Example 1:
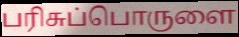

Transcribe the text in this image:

பரிசுப்பொருளை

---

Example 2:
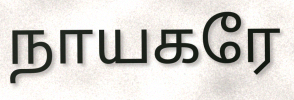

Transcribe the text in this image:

நாயகரே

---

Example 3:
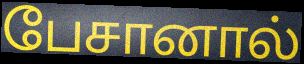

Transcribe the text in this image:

பேசானால்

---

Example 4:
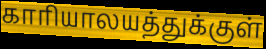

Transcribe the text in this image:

காரியாலயத்துக்குள்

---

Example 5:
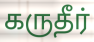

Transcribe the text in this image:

கருதீர்